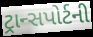
ટ્રાન્સપોર્ટની